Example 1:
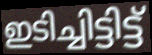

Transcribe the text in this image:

ഇടിച്ചിട്ടിട്ട്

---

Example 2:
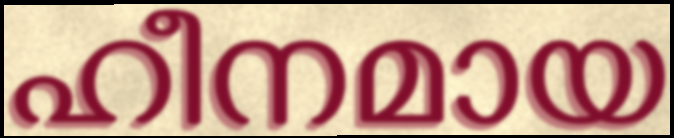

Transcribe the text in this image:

ഹീനമായ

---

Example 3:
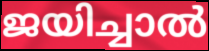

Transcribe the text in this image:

ജയിച്ചാൽ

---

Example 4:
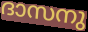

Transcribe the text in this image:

ദാസനു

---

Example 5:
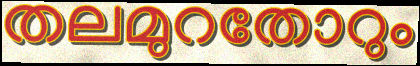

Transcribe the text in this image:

തലമുറതോറും